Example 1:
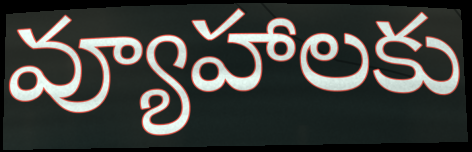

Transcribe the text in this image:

వ్యూహాలకు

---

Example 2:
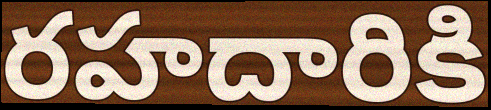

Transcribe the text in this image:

రహదారికి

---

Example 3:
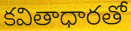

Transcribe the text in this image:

కవితాధారతో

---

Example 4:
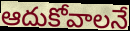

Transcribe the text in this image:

ఆదుకోవాలనే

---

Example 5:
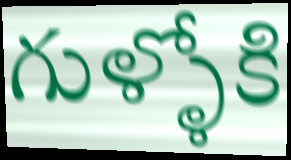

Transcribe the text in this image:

గుళ్ళోకి